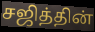
சஜித்தின்